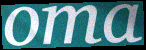
oma